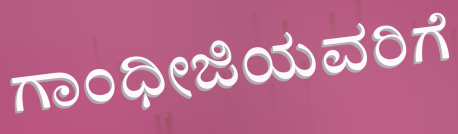
ಗಾಂಧೀಜಿಯವರಿಗೆ